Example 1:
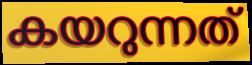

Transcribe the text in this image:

കയറുന്നത്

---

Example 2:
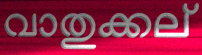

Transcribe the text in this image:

വാതുക്കല്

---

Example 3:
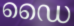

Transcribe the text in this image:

ഡൈ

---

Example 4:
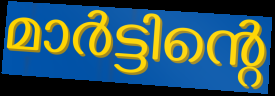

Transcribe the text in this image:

മാർട്ടിന്റെ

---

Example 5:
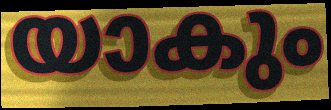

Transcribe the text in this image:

യാകും